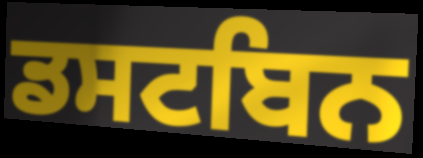
ਡਸਟਬਿਨ